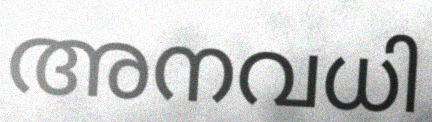
അനവധി